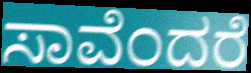
ಸಾವೆಂದರೆ